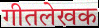
गीतलेखक